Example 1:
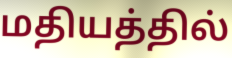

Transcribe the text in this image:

மதியத்தில்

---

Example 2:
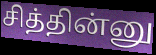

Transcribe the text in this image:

சித்தின்னு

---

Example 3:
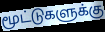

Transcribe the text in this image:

மூட்டுகளுக்கு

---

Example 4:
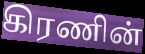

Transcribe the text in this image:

கிரணின்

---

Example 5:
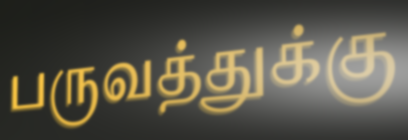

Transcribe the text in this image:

பருவத்துக்கு